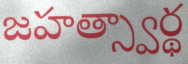
జహత్స్వార్థ